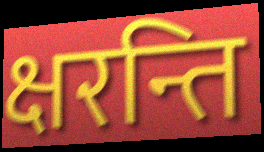
क्षरन्ति